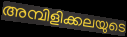
അമ്പിളിക്കലയുടെ